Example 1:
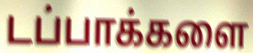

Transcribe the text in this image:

டப்பாக்களை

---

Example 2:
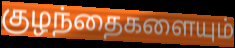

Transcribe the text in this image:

குழந்தைகளையும்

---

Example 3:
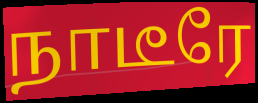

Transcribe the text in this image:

நாடீரே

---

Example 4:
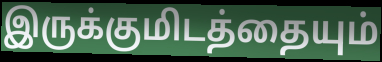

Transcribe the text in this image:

இருக்குமிடத்தையும்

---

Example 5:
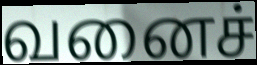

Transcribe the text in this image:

வனைச்